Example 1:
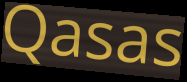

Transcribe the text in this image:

Qasas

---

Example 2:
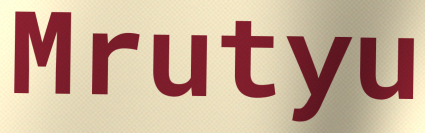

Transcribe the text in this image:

Mrutyu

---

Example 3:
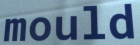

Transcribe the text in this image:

mould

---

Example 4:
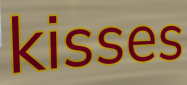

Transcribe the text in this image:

kisses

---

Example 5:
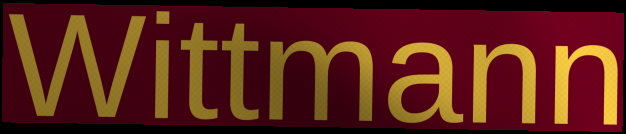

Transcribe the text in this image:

Wittmann